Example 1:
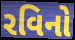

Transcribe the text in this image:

રવિનો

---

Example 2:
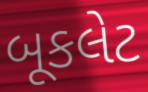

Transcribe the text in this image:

બૂકલેટ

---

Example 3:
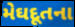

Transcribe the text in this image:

મેઘદૂતના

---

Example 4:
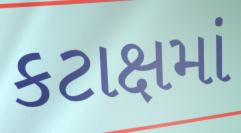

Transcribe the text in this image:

કટાક્ષમાં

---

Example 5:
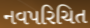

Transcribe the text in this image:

નવપરિચિત